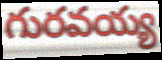
గురవయ్య